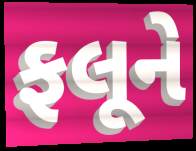
ફલૂને